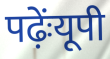
पढ़ेंःयूपी